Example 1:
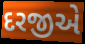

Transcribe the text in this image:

દરજીએ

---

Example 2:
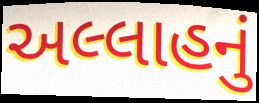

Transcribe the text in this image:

અલ્લાહનું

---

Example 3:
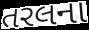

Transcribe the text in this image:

તરલના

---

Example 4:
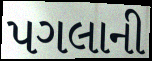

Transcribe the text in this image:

પગલાની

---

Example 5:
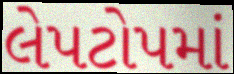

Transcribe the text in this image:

લેપટોપમાં